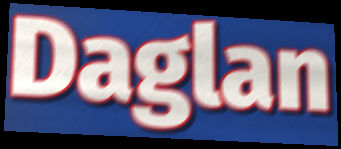
Daglan